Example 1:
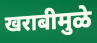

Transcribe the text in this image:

खराबीमुळे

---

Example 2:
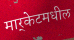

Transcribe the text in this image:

मार्केटमधील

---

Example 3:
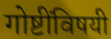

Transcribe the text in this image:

गोष्टींविषयी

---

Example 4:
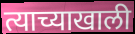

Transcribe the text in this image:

त्याच्याखाली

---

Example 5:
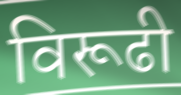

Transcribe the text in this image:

विरूढी